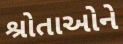
શ્રોતાઓને